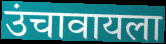
उंचावायला